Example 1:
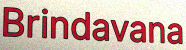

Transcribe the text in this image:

Brindavana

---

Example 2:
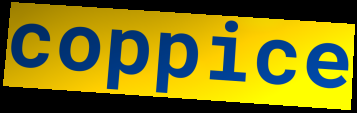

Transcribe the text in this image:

coppice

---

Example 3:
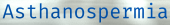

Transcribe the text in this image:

Asthanospermia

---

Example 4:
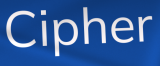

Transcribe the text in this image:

Cipher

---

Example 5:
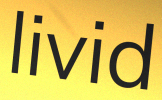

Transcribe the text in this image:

livid